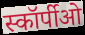
स्कॉर्पीओ